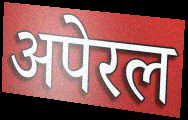
अपेरल